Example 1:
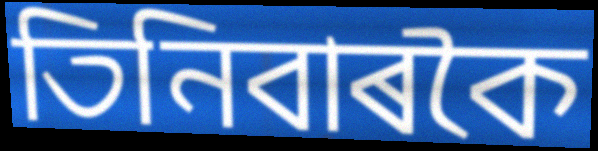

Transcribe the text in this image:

তিনিবাৰকৈ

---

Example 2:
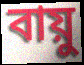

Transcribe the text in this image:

বায়ু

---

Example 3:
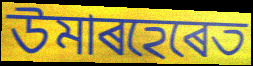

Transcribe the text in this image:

উমাৰহেৰেত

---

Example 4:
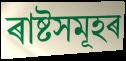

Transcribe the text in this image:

ৰাষ্টসমূহৰ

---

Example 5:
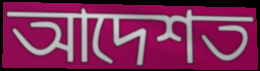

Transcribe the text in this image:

আদেশত